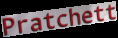
Pratchett